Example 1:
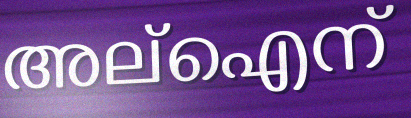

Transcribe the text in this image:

അല്ഐന്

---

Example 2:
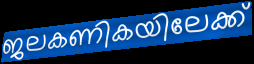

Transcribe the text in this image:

ജലകണികയിലേക്ക്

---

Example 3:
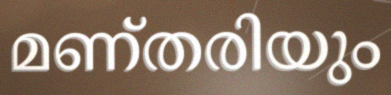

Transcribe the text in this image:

മണ്തരിയും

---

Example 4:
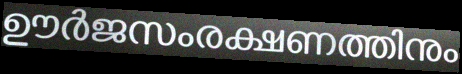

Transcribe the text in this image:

ഊർജസംരക്ഷണത്തിനും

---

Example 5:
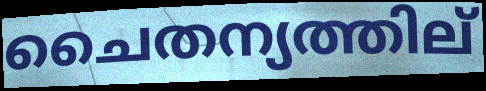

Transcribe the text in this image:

ചൈതന്യത്തില്